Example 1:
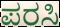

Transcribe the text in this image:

ಪರಸಿ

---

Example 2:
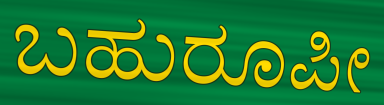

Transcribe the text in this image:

ಬಹುರೂಪೀ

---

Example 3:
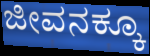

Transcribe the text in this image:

ಜೀವನಕ್ಕೂ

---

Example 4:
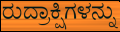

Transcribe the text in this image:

ರುದ್ರಾಕ್ಷಿಗಳನ್ನು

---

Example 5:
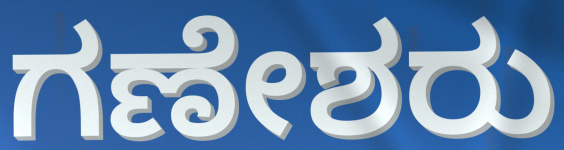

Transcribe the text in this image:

ಗಣೇಶರು